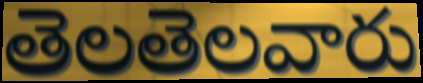
తెలతెలవారు